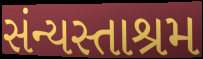
સંન્યસ્તાશ્રમ